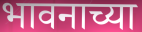
भावनाच्या